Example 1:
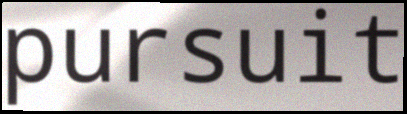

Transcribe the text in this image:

pursuit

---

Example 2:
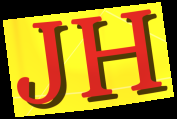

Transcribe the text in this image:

JH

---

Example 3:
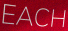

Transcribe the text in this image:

EACH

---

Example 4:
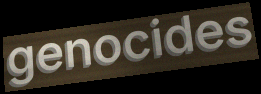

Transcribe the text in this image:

genocides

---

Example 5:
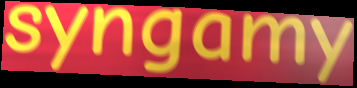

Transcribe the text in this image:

syngamy